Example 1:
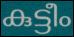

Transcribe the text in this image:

കുട്ടീം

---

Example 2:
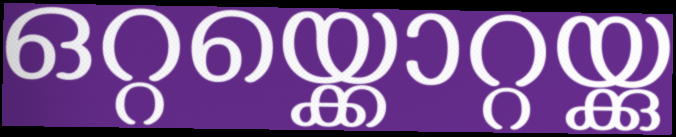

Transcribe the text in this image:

ഒറ്റയ്ക്കൊറ്റയ്ക്കു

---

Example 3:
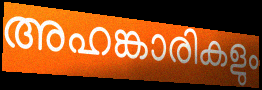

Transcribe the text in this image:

അഹങ്കാരികളും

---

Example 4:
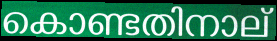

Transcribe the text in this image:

കൊണ്ടതിനാല്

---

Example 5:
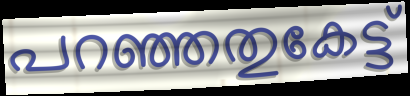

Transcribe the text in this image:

പറഞ്ഞതുകേട്ട്